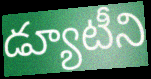
డ్యూటీని